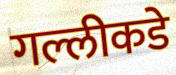
गल्लीकडे